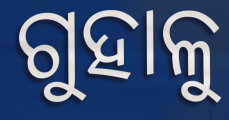
ଗୁହାଳୁ